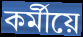
কৰ্মীয়ে